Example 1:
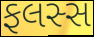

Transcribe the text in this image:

ફલસ્સ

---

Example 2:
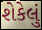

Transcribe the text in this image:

શેકેલું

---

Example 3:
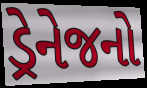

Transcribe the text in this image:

ડ્રેનેજનો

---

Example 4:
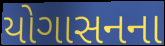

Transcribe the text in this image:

યોગાસનના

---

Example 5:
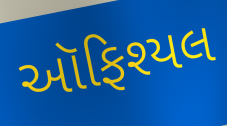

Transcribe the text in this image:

ઑફિશ્યલ